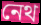
নেথ